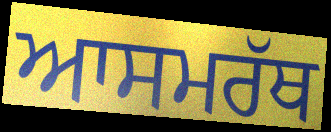
ਆਸਮਰੱਥ